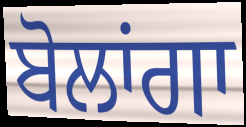
ਬੋਲਾਂਗਾ